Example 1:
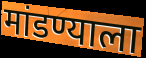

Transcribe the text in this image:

मांडण्याला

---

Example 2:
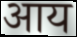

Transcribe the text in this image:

आय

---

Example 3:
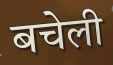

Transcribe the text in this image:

बचेली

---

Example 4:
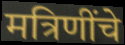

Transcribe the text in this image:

मत्रिणींचे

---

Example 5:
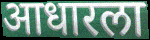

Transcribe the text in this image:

आधारला